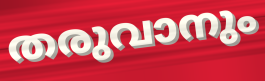
തരുവാനും